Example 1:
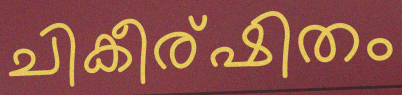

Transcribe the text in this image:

ചികീര്ഷിതം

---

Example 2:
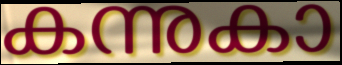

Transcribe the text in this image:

കന്നുകാ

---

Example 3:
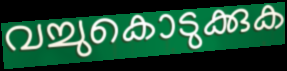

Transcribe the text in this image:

വച്ചുകൊടുക്കുക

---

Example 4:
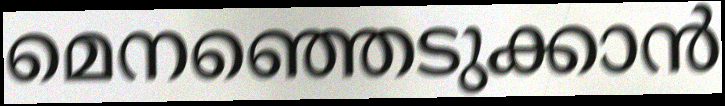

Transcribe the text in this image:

മെനഞ്ഞെടുക്കാൻ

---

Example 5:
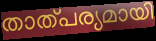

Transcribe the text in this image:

താത്പര്യമായി